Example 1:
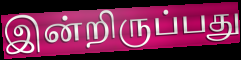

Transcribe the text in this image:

இன்றிருப்பது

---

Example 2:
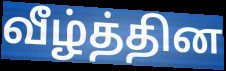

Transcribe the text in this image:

வீழ்த்தின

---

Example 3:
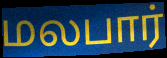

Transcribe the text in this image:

மலபார்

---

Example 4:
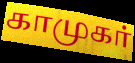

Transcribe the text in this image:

காமுகர்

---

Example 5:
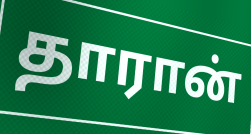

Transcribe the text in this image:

தாரான்